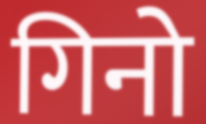
गिनो